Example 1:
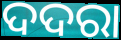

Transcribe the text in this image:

ଦଦରା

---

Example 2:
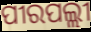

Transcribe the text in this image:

ପୀରପଲ୍ଲୀ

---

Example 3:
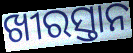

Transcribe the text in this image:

ଖୀରସ୍ତାନ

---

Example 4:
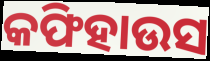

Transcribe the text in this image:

କଫିହାଉସ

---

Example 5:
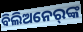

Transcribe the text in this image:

ବିଲିଅନେର୍‌ଙ୍କ